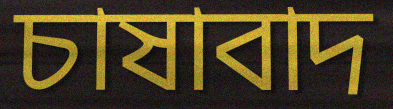
চাষাবাদ